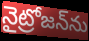
నైట్రోజన్‌ను